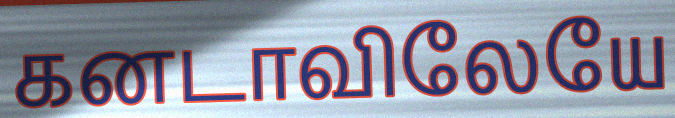
கனடாவிலேயே